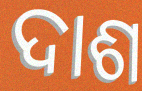
ଦାଶ